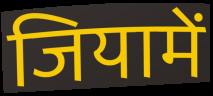
जियामें